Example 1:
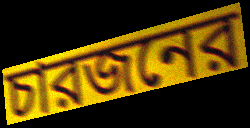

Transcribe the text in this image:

চারজনের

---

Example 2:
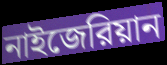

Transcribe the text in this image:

নাইজেরিয়ান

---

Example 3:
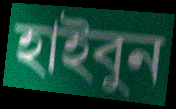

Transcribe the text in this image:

হাইবুন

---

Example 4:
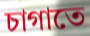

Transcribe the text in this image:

চাগাতে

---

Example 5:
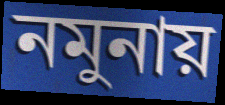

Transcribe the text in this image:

নমুনায়